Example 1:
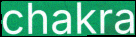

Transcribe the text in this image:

chakra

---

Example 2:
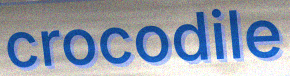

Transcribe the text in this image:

crocodile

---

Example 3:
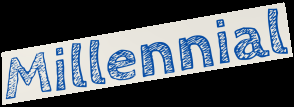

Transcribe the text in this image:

Millennial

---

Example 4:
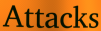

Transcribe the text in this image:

Attacks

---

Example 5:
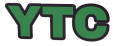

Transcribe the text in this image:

YTC